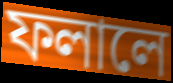
ফলালে